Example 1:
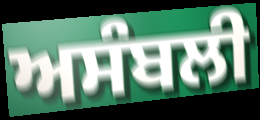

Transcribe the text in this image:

ਅਸੰਬਲੀ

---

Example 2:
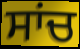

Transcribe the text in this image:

ਸਾਂਚ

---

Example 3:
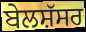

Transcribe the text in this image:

ਬੇਲਸ਼ੱਸਰ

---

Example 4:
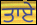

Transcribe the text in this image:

ਤਾਏ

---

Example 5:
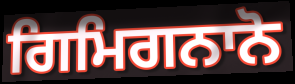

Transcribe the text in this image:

ਗਿਮਿਗਨਾਨੋ